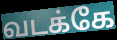
வடக்கே